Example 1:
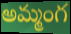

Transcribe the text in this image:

అమ్మంగ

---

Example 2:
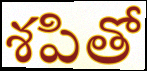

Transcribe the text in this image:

శపితో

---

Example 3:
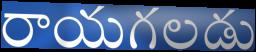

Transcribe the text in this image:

రాయగలడు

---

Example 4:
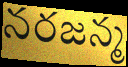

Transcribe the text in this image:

నరజన్మ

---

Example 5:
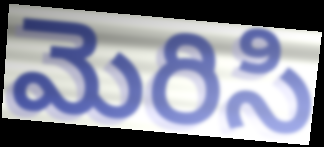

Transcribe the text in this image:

మెరిసి